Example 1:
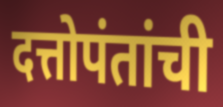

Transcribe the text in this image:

दत्तोपंतांची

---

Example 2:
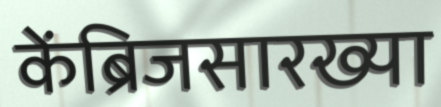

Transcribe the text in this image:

केंब्रिजसारख्या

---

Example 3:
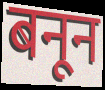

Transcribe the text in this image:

बनून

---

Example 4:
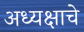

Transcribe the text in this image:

अध्यक्षाचे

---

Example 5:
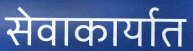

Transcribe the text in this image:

सेवाकार्यात